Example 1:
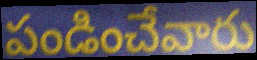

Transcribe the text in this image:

పండించేవారు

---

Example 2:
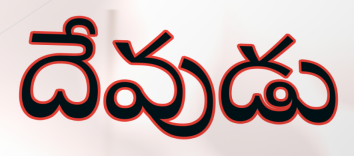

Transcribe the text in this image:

దేవుడు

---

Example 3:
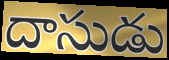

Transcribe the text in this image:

దాసుడు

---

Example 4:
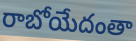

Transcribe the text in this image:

రాబోయేదంతా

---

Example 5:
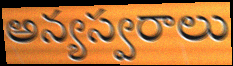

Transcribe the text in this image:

అన్యస్వరాలు